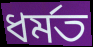
ধৰ্মত